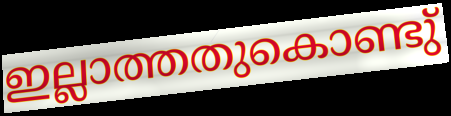
ഇല്ലാത്തതുകൊണ്ടു്